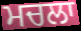
ਮਚਲਾ